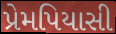
પ્રેમપિયાસી